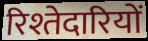
रिश्तेदारियों